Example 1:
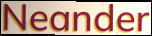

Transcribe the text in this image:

Neander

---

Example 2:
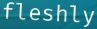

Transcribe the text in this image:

fleshly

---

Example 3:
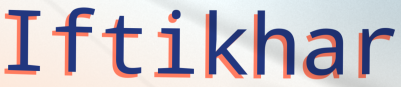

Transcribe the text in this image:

Iftikhar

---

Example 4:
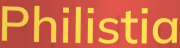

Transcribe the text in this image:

Philistia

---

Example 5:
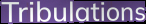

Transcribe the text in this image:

Tribulations